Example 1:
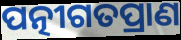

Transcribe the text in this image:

ପତ୍ନୀଗତପ୍ରାଣ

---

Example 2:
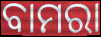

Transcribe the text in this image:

ବାମରା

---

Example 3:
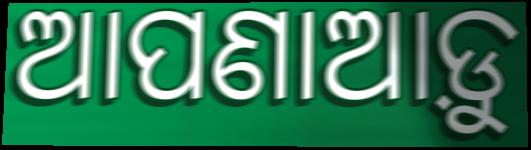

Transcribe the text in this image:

ଆପଣାଆଡ଼ୁ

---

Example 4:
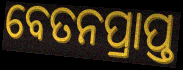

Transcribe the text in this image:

ବେତନପ୍ରାପ୍ତ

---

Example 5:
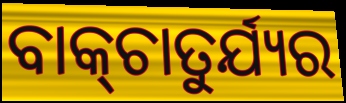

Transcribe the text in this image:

ବାକ୍‍ଚାତୁର୍ଯ୍ୟର